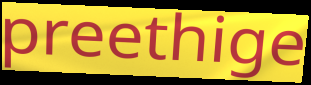
preethige